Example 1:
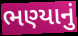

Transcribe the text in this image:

ભણ્યાનું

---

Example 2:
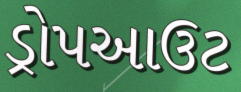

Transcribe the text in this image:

ડ્રોપઆઉટ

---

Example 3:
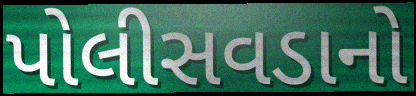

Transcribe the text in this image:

પોલીસવડાનો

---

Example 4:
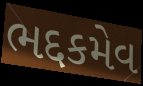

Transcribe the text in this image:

ભદ્દકમેવ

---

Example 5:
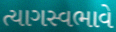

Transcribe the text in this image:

ત્યાગસ્વભાવે